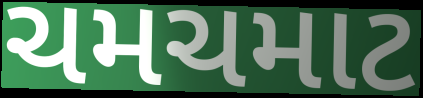
ચમચમાટ